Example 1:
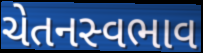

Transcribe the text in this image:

ચેતનસ્વભાવ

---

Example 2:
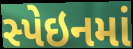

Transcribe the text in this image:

સ્પેઇનમાં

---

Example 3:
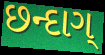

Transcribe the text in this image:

છન્દાગ્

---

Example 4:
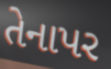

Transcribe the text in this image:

તેનાપર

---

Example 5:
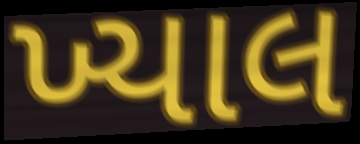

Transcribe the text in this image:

ખ્યાલ